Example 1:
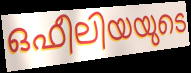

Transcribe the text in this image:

ഒഫീലിയയുടെ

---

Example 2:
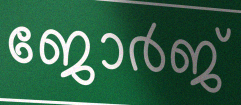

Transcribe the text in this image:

ജോർജ്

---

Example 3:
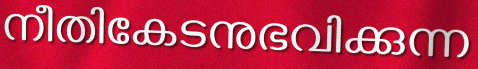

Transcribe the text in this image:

നീതികേടനുഭവിക്കുന്ന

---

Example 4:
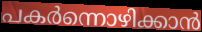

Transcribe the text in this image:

പകർന്നൊഴിക്കാൻ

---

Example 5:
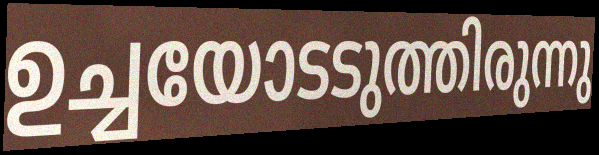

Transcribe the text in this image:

ഉച്ചയോടടുത്തിരുന്നു